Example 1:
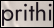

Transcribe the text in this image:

prithi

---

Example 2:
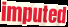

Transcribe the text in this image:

imputed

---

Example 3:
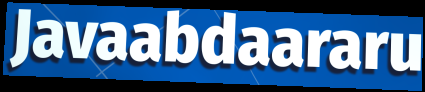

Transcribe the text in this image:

Javaabdaararu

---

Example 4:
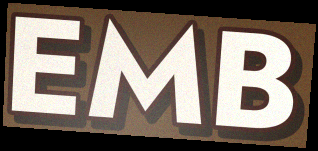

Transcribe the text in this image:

EMB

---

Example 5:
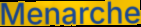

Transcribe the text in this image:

Menarche